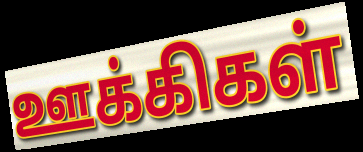
ஊக்கிகள்